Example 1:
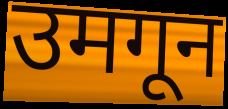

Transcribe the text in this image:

उमगून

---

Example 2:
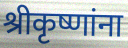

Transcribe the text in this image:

श्रीकृष्णांना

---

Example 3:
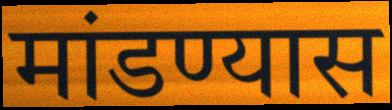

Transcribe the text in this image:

मांडण्यास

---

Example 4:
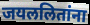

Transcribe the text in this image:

जयललितांना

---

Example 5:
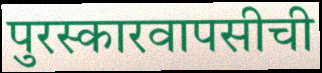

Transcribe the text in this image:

पुरस्कारवापसीची